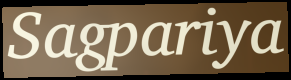
Sagpariya